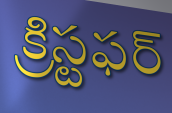
క్రిస్టఫర్